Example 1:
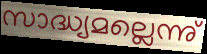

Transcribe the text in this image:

സാദ്ധ്യമല്ലെന്നു്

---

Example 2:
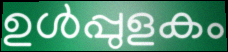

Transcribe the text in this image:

ഉൾപ്പുളകം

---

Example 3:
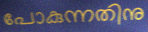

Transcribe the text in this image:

പോകുന്നതിനു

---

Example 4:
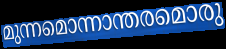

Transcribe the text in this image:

മുന്നമൊന്നാന്തരമൊരു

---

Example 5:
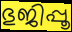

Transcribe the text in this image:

ഭുജിപ്പൂ